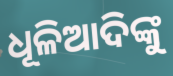
ଧୂଳିଆଦିଙ୍କୁ